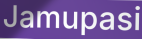
Jamupasi